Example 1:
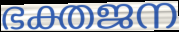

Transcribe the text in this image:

ഭക്തജന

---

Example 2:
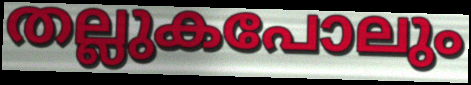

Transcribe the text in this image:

തല്ലുകപോലും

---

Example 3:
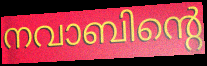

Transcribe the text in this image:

നവാബിന്റെ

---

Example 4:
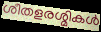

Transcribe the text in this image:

ശീതളരശ്മികൾ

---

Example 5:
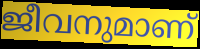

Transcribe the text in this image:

ജീവനുമാണ്